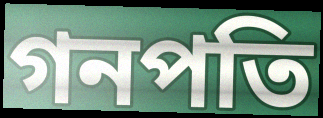
গনপতি